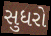
સુધરો